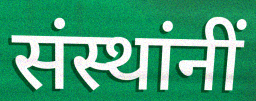
संस्थांनीं